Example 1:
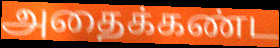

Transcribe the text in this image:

அதைக்கண்ட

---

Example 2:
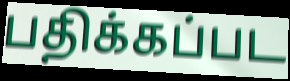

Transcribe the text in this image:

பதிக்கப்பட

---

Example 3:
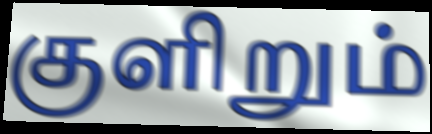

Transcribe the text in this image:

குளிறும்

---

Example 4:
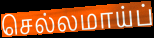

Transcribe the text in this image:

செல்லமாய்ப்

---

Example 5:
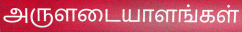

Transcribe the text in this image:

அருளடையாளங்கள்